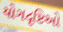
યોગદૃષ્ટિઓ